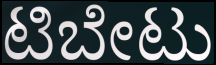
ಟಿಬೇಟು